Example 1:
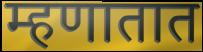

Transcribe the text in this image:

म्हणातात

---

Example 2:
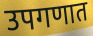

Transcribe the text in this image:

उपगणात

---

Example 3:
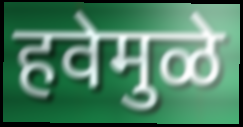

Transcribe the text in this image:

हवेमुळे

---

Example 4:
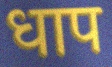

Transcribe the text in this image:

धाप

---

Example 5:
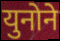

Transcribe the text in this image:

युनोने